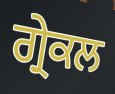
ਗ੍ਰੇਕਲ